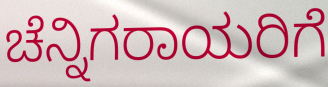
ಚೆನ್ನಿಗರಾಯರಿಗೆ